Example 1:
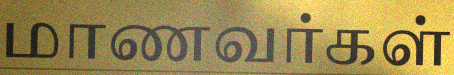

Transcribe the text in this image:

மாணவர்கள்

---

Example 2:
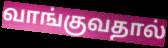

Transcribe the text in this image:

வாங்குவதால்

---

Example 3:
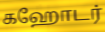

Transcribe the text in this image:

கஹோடர்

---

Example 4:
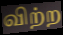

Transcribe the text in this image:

விற்ற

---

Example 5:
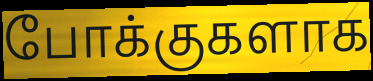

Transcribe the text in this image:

போக்குகளாக